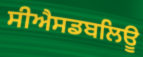
ਸੀਐਸਡਬਲਿਊ